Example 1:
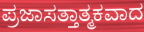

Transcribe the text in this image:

ಪ್ರಜಾಸತ್ತಾತ್ಮಕವಾದ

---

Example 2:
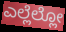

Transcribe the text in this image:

ಎಲ್ಲೆಲ್ಲೋ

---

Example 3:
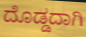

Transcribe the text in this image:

ದೊಡ್ಡದಾಗಿ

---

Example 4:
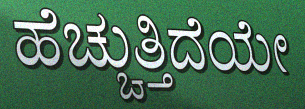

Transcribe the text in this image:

ಹೆಚ್ಚುತ್ತಿದೆಯೇ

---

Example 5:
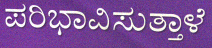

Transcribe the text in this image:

ಪರಿಭಾವಿಸುತ್ತಾಳೆ